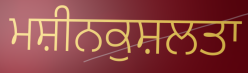
ਮਸ਼ੀਨਕੁਸ਼ਲਤਾ